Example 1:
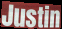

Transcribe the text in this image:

Justin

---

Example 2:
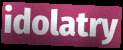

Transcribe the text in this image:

idolatry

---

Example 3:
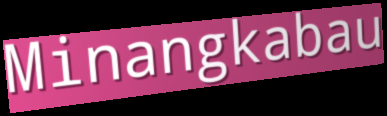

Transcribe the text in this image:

Minangkabau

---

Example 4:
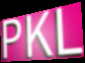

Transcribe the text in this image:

PKL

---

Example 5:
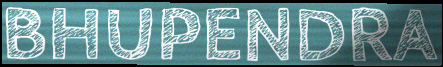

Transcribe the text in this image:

BHUPENDRA